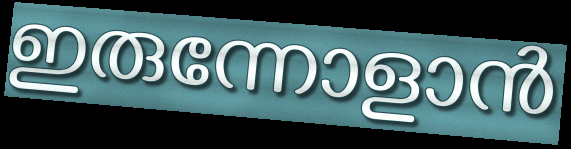
ഇരുന്നോളാൻ